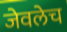
जेवलेच